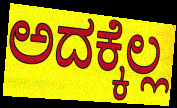
ಅದಕ್ಕೆಲ್ಲ